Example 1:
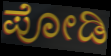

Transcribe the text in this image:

ಪೋಡಿ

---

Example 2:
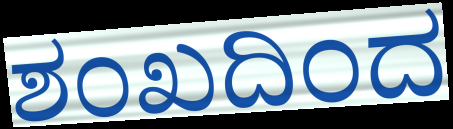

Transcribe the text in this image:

ಶಂಖದಿಂದ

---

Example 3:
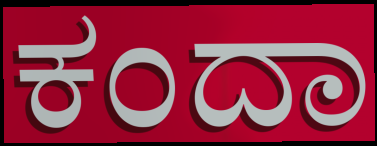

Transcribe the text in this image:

ಕಂದಾ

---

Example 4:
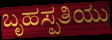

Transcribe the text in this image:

ಬೃಹಸ್ಪತಿಯು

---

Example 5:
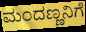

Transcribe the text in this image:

ಮಂದಣ್ಣನಿಗೆ